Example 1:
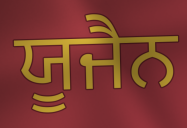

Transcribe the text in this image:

ਯੂਜੈਨ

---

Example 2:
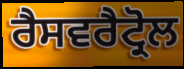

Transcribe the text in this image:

ਰੈਸਵਰੈਟ੍ਰੋਲ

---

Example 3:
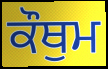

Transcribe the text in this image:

ਕੌਥੁਮ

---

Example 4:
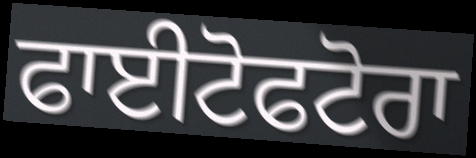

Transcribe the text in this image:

ਫਾਈਟੋਫਟੋਰਾ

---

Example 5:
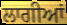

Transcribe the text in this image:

ਲਾਗੀਆਂ